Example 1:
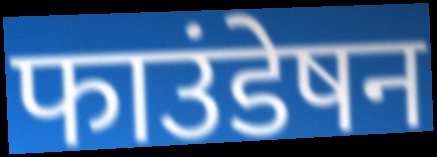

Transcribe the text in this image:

फाउंडेषन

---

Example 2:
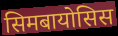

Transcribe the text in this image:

सिमबायोसिस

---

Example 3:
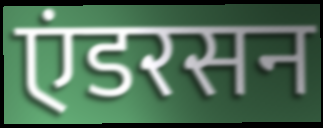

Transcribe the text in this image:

एंडरसन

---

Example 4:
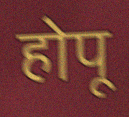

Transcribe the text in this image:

होपू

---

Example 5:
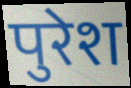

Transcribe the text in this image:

पुरेश